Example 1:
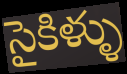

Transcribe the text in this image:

సైకిళ్ళు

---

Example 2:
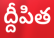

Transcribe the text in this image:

ద్దీపిత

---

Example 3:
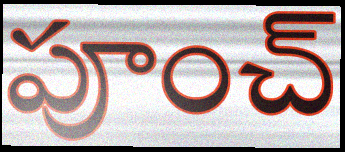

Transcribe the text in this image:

పూంచ్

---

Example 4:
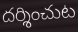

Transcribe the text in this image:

దర్శించుట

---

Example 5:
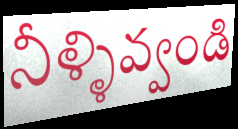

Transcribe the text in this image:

నీళ్ళివ్వండి